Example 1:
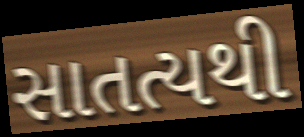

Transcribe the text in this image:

સાતત્યથી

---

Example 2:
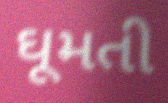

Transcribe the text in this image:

ઘૂમતી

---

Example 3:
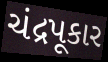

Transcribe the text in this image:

ચંદ્રપૂકાર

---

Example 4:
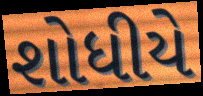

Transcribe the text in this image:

શોધીયે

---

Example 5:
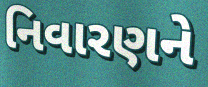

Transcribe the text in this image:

નિવારણને